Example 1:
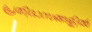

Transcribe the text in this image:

പ്രതിഭാസങ്ങളിൽ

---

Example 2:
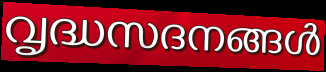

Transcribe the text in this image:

വൃദ്ധസദനങ്ങൾ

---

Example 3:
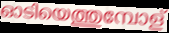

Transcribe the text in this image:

ഓടിയെത്തുമ്പോള്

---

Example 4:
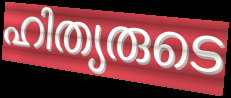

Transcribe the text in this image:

ഹിത്യരുടെ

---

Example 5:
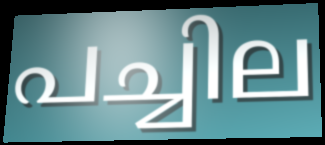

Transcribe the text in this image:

പച്ചില